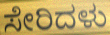
ಸೇರಿದಳು